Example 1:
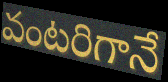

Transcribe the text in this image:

వంటరిగానే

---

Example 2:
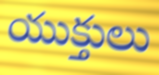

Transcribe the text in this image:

యుక్తులు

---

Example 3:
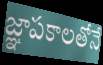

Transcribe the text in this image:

జ్ఞాపకాలతోనే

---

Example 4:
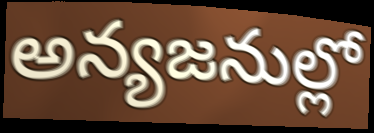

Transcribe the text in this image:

అన్యజనుల్లో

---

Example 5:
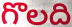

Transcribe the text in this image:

గొలది